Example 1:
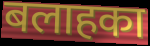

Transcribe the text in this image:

बलाहका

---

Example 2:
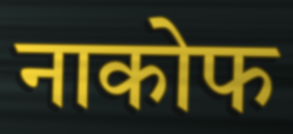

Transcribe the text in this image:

नाकोफ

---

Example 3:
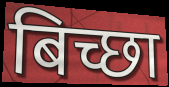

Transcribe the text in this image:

बिच्छा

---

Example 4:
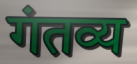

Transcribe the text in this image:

गंतव्य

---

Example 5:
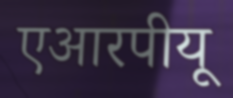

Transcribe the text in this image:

एआरपीयू